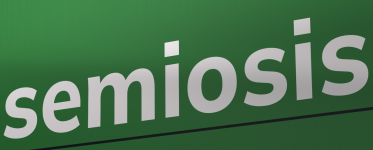
semiosis